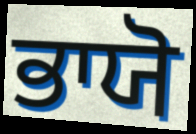
ਭਾਯੋ